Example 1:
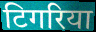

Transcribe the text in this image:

टिगरिया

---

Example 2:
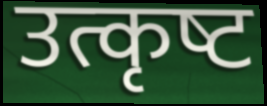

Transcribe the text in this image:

उत्‍कृष्‍ट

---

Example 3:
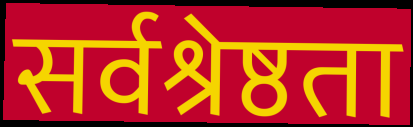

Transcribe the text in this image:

सर्वश्रेष्ठता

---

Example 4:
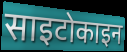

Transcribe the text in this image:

साइटोकाइन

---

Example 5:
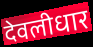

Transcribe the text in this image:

देवलीधार